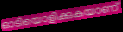
ഓടിയൊളിക്കുകയാണ്